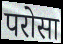
परोसा